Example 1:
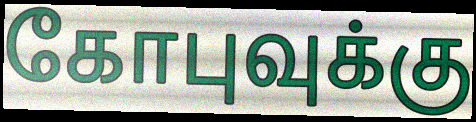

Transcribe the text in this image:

கோபுவுக்கு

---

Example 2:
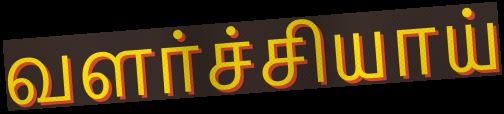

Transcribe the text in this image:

வளர்ச்சியாய்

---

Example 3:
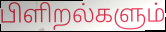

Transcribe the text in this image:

பிளிறல்களும்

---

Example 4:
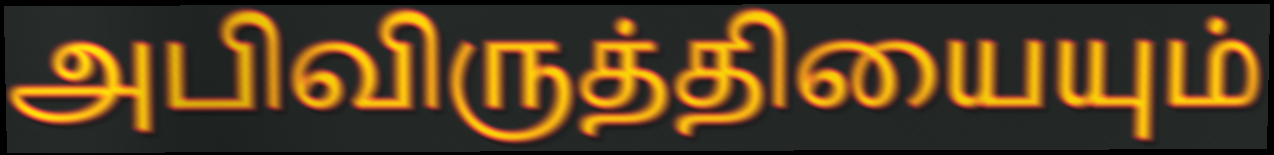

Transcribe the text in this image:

அபிவிருத்தியையும்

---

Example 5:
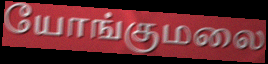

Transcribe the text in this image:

யோங்குமலை